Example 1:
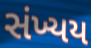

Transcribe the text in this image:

સંખ્યય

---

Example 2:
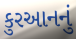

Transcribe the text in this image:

કુરઆનનું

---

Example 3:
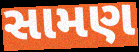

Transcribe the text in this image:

સામણ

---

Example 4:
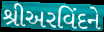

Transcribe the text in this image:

શ્રીઅરવિંદને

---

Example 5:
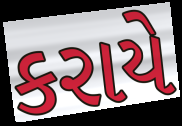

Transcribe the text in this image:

કરાયે